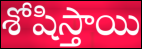
శోషిస్తాయి